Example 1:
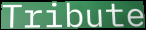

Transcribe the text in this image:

Tribute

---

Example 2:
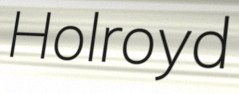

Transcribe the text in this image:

Holroyd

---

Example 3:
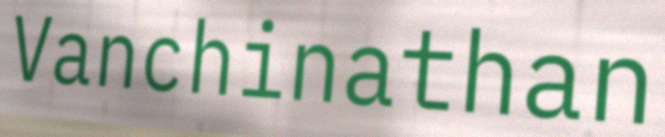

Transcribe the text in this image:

Vanchinathan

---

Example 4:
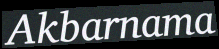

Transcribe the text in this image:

Akbarnama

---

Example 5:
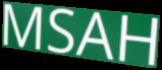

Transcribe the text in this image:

MSAH